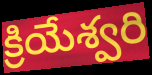
క్రియేశ్వరి